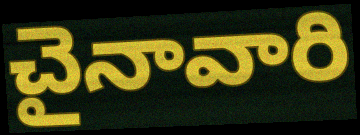
చైనావారి